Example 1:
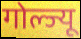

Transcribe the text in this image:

गोल्ज्यू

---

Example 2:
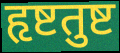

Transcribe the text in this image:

हृष्टतुष्ट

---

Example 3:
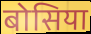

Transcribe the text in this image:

बोसिया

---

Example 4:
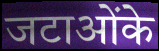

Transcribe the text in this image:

जटाओंके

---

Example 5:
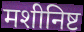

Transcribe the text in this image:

मशीनिष्ट